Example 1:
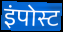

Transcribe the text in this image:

इंपोस्ट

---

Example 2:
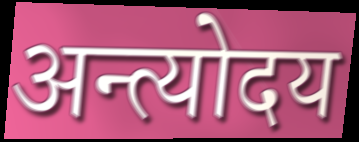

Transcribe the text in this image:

अन्त्योदय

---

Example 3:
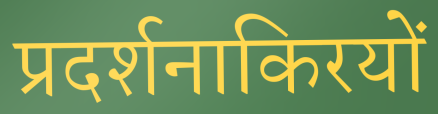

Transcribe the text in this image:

प्रदर्शनाकिरयों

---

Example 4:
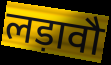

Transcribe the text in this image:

लड़ावौ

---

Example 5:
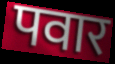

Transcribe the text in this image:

पवार